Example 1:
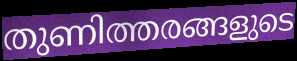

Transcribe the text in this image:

തുണിത്തരങ്ങളുടെ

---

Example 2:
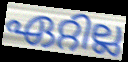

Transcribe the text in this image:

ഏറ്റില്ല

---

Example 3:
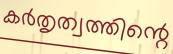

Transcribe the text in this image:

കർതൃത്വത്തിന്റെ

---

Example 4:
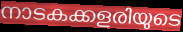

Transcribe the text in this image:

നാടകക്കളരിയുടെ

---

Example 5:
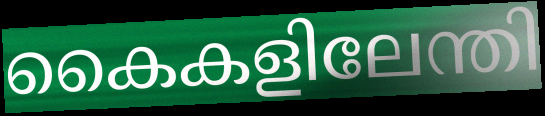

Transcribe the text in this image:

കൈകളിലേന്തി